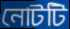
নোটটি